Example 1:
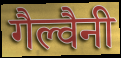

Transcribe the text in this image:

गैल्वैनी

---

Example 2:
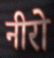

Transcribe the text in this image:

नीरो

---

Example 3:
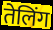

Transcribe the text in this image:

तेलिंग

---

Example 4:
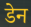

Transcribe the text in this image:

डेन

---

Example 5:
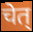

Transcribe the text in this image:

चेत्